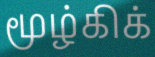
மூழ்கிக்